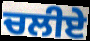
ਚਲੀਏ